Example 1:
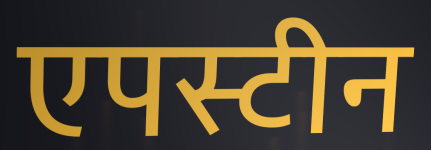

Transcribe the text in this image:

एपस्टीन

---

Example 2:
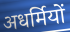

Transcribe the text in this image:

अधर्मियों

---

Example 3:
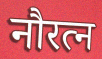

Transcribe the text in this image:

नौरत्न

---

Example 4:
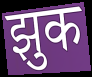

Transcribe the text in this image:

झुक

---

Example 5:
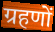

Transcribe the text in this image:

ग्रहणों